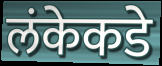
लंकेकडे